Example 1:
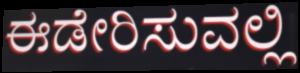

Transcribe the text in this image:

ಈಡೇರಿಸುವಲ್ಲಿ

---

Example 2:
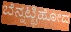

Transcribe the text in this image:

ಬೆನ್ನಟ್ಟಿಹೋದ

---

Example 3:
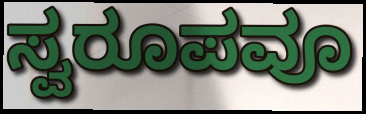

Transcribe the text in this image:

ಸ್ವರೂಪವೂ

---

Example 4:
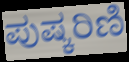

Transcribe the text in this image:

ಪುಷ್ಕರಿಣಿ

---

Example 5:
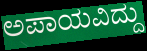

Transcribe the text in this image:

ಅಪಾಯವಿದ್ದು